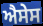
ਐਸੇਸ